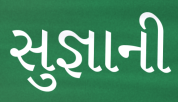
સુજ્ઞાની